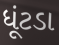
ધૂંટડા